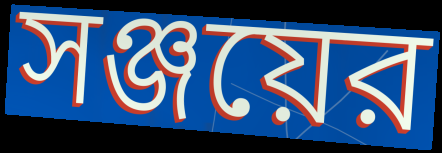
সঞ্জয়ের